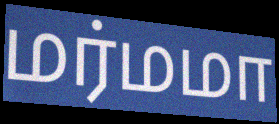
மர்மமா